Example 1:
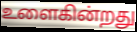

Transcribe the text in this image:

உளைகின்றது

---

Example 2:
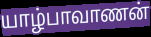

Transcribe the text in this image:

யாழ்பாவாணன்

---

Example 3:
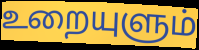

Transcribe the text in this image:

உறையுளும்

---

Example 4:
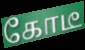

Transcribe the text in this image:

கோடீ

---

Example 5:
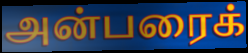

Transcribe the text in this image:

அன்பரைக்